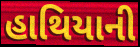
હાથિયાની